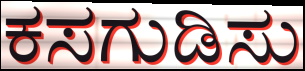
ಕಸಗುಡಿಸು